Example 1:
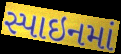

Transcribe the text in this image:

સ્પાઇનમાં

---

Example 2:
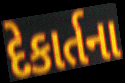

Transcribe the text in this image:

દેકાર્તના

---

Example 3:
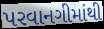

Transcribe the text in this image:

પરવાનગીમાંથી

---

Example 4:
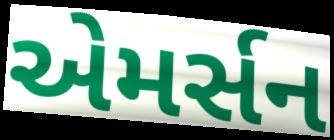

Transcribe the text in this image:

એમર્સન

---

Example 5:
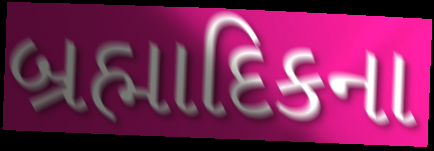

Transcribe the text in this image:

બ્રહ્માદિકના